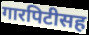
गारपिटीसह